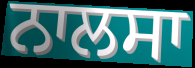
ਨਾਲਸਾ